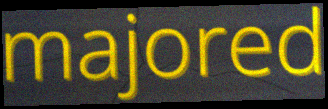
majored